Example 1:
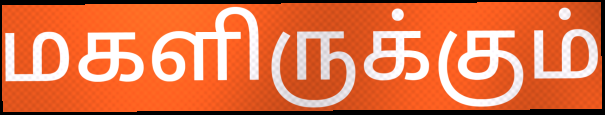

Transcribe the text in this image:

மகளிருக்கும்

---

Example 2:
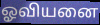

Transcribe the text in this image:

ஓவியனை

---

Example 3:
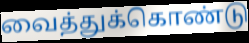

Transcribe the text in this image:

வைத்துக்கொண்டு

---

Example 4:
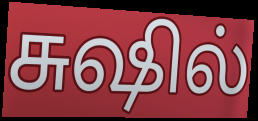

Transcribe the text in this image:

சுஷில்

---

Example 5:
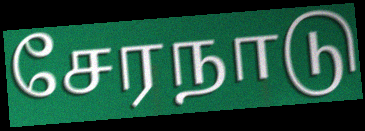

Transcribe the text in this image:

சேரநாடு